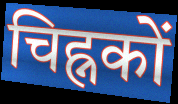
चिह्नकों